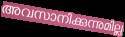
അവസാനിക്കുന്നുമില്ല